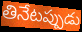
తినేటప్పుడు